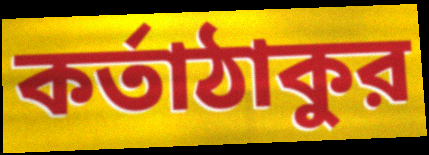
কর্তাঠাকুর